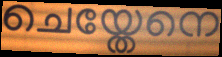
ചെയ്തേനെ